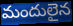
మందులైన